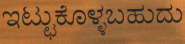
ಇಟ್ಟುಕೊಳ್ಳಬಹುದು